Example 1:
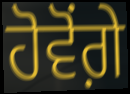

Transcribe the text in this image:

ਹੋਵੋਂਗ਼ੇ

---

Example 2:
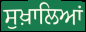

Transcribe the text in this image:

ਸੁਖ਼ਾਲਿਆਂ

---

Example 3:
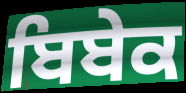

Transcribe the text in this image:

ਬਿਬੇਕ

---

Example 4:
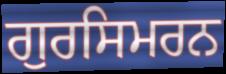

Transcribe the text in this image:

ਗੁਰਸਿਮਰਨ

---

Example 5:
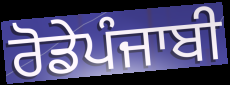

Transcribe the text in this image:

ਰੋਡੇਪੰਜਾਬੀ